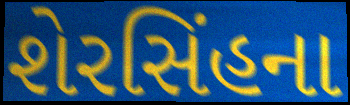
શેરસિંહના